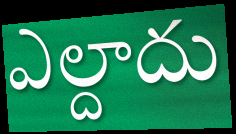
ఎల్దాదు